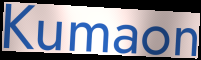
Kumaon